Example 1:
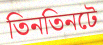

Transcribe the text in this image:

তিনতিনটে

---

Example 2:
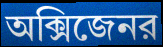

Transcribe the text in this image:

অক্সিজেনর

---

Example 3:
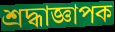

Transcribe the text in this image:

শ্রদ্ধাজ্ঞাপক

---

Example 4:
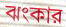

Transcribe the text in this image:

ঝংকার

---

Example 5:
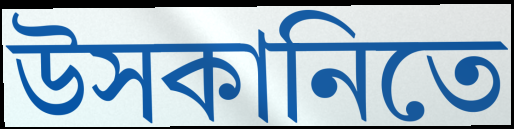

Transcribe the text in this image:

উসকানিতে